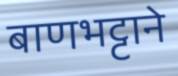
बाणभट्टाने